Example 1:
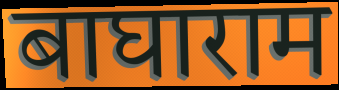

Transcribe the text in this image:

बाघाराम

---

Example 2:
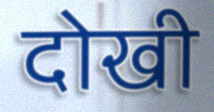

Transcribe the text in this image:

दोखी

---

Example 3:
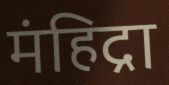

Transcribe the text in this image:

मंहिद्रा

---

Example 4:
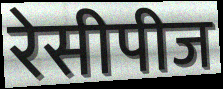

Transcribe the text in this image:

रेसीपीज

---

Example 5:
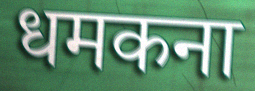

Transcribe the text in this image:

धमकना